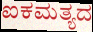
ಐಕಮತ್ಯದ